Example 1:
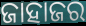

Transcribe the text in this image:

ଜାହାଜର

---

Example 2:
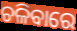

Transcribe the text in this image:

ଚଳିବାରେ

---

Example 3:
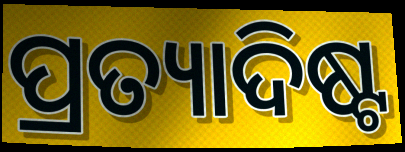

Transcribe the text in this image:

ପ୍ରତ୍ୟାଦିଷ୍ଟ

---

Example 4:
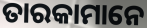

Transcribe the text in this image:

ତାରକାମାନେ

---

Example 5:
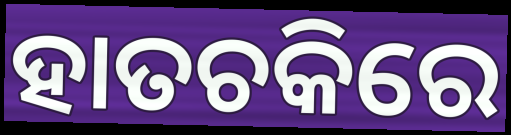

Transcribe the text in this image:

ହାତଚକିରେ